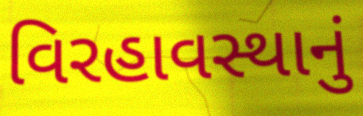
વિરહાવસ્થાનું